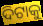
ଦିଟାକୁ